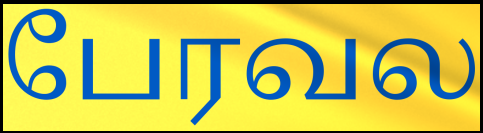
பேரவல